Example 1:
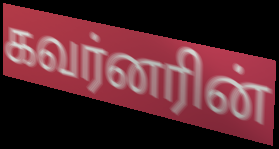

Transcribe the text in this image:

கவர்னரின்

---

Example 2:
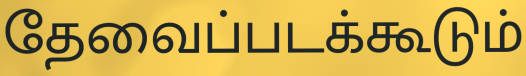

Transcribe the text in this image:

தேவைப்படக்கூடும்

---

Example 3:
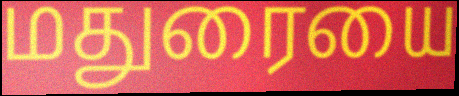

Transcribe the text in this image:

மதுரையை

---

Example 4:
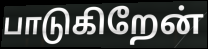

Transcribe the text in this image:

பாடுகிறேன்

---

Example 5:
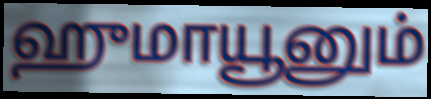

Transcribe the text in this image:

ஹுமாயூனும்